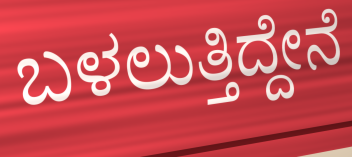
ಬಳಲುತ್ತಿದ್ದೇನೆ